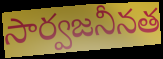
సార్వజనీనత